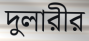
দুলারীর